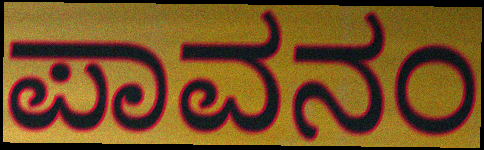
ಪಾವನಂ